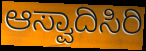
ಆಸ್ವಾದಿಸಿರಿ